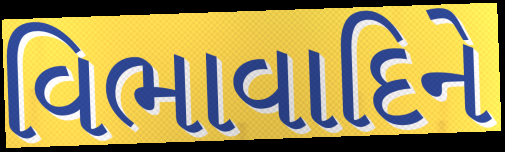
વિભાવાદિને